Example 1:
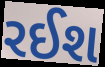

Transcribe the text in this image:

રઈશ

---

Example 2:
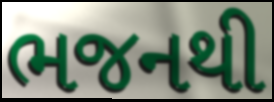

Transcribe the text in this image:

ભજનથી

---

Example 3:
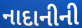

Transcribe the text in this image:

નાદાનીની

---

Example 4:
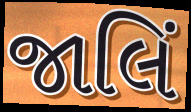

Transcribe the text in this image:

જાલિં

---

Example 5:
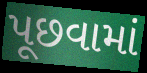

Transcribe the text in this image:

પૂછવામાં